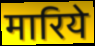
मारिये